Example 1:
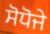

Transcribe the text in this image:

ਸੋਧੋਜੇ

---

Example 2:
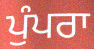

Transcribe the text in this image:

ਪੁੰਪਰਾ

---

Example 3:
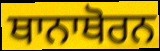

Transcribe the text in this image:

ਥਾਨਾਥੋਰਨ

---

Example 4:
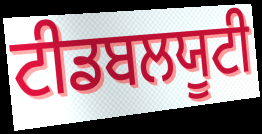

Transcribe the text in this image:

ਟੀਡਬਲਯੂਟੀ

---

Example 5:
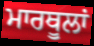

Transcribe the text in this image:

ਮਾਰਥੂਲਾਂ